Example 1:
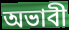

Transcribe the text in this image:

অভাবী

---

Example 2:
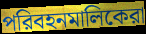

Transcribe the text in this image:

পরিবহনমালিকেরা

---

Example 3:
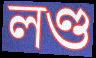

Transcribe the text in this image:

লণ্ড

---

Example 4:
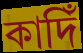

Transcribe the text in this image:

কাদিঁ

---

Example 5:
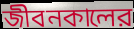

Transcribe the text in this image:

জীবনকালের